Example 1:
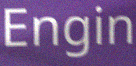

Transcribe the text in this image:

Engin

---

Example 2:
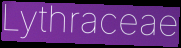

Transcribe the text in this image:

Lythraceae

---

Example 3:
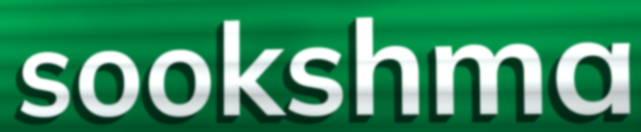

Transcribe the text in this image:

sookshma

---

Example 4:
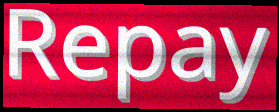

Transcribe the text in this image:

Repay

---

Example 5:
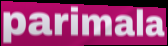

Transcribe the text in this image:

parimala